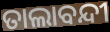
ତାଲାବନ୍ଦୀ